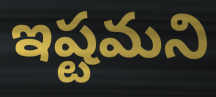
ఇష్టమని